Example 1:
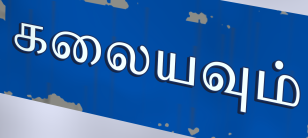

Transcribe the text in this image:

கலையவும்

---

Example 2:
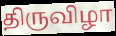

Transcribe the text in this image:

திருவிழா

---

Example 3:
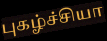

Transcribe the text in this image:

புகழ்ச்சியா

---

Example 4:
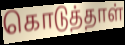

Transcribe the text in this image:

கொடுத்தாள்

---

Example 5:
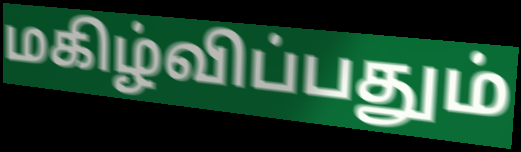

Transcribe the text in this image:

மகிழ்விப்பதும்